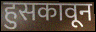
हुसकावून